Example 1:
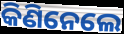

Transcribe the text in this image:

କିଣିନେଲେ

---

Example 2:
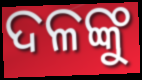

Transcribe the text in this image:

ଦଳଙ୍କୁ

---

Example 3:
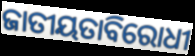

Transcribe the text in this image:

ଜାତୀୟତାବିରୋଧୀ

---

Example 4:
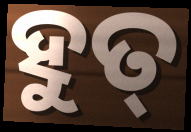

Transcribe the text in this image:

ହୁତ୍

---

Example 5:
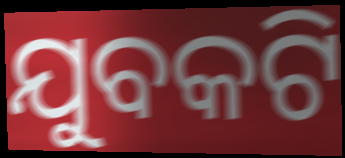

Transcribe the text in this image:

ଯୁବକଟି